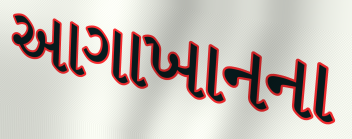
આગાખાનના